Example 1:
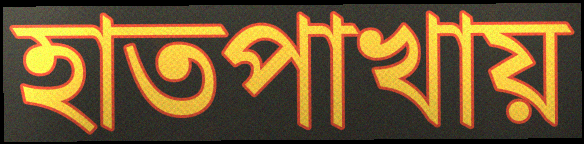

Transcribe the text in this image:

হাতপাখায়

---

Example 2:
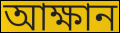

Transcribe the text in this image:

আক্ষান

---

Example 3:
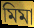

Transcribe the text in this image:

মিমা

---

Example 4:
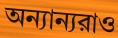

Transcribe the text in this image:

অন্যান্যরাও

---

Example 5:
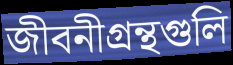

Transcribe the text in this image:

জীবনীগ্রন্থগুলি